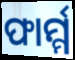
ଫାର୍ମ୍ମ